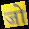
जो